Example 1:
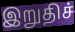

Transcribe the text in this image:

இறுதிச்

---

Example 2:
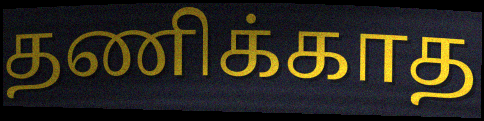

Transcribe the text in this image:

தணிக்காத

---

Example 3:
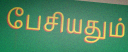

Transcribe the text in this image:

பேசியதும்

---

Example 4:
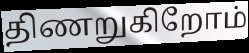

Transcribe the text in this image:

திணறுகிறோம்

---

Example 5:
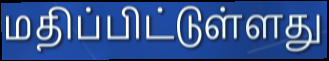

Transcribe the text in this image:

மதிப்பிட்டுள்ளது